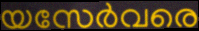
യസേർവരെ